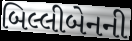
બિલ્લીબેનની